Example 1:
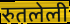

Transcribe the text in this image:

रुतलेली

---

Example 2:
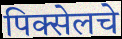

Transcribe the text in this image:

पिक्सेलचे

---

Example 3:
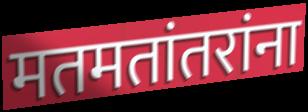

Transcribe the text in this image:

मतमतांतरांना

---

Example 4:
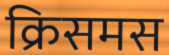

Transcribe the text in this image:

क्रिसमस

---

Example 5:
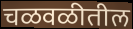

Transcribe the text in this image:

चळवळीतील